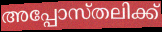
അപ്പോസ്തലിക്ക്